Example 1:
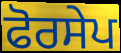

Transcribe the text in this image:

ਫੋਰਸੇਪ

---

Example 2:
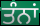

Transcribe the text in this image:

ਤੰਨਾਂ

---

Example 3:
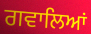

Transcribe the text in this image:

ਗਵਾਲਿਆਂ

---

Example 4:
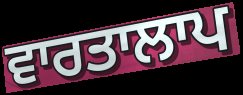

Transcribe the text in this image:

ਵਾਰਤਾਲਾਪ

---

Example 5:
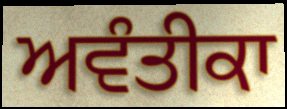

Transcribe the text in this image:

ਅਵੰਤੀਕਾ